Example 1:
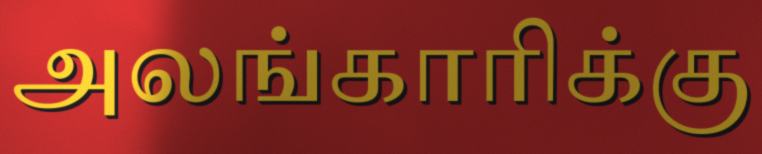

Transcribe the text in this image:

அலங்காரிக்கு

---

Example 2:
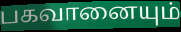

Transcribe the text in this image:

பகவானையும்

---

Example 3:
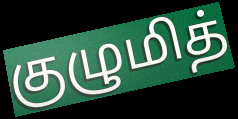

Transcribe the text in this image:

குழுமித்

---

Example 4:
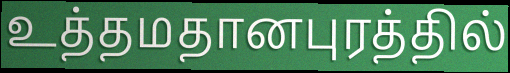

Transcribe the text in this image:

உத்தமதானபுரத்தில்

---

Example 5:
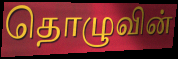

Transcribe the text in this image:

தொழுவின்